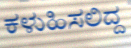
ಕಳುಹಿಸಲಿದ್ದ